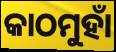
କାଠମୁହାଁ